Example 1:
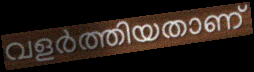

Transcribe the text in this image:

വളർത്തിയതാണ്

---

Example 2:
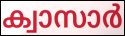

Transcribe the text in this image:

ക്വാസാർ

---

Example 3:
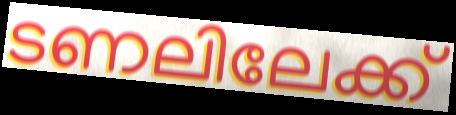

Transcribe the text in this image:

ടണലിലേക്ക്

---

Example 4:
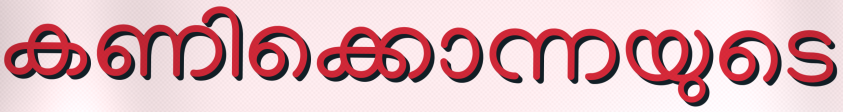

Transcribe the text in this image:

കണിക്കൊന്നയുടെ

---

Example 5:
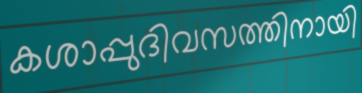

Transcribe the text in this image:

കശാപ്പുദിവസത്തിനായി